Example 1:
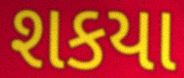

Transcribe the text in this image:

શકયા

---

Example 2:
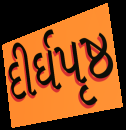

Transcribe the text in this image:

દીર્ઘપૃષ્ઠ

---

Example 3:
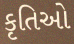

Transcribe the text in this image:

કૃતિઓ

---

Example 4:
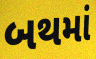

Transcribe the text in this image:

બથમાં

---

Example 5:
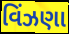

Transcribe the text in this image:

વિંઝણા